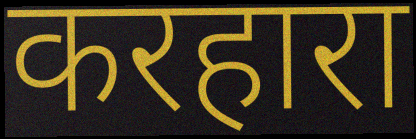
करहारा